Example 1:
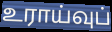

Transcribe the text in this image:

உராய்வுப்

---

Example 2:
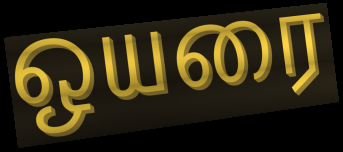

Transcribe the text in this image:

ஒயரை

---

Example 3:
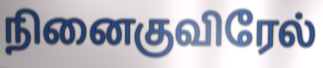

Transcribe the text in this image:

நினைகுவிரேல்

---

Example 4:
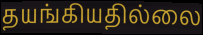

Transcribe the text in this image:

தயங்கியதில்லை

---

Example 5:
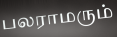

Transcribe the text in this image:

பலராமரும்